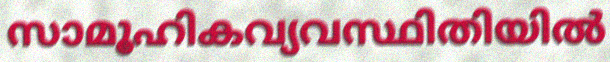
സാമൂഹികവ്യവസ്ഥിതിയിൽ